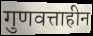
गुणवत्ताहीन